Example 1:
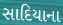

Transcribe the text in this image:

સાદિયાના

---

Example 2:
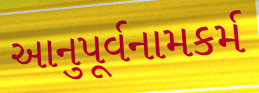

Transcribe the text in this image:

આનુપૂર્વનામકર્મ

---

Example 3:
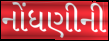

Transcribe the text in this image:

નોંધણીની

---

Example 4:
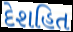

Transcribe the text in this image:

દેશહિત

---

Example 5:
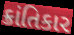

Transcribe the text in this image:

ક્રાંતિકાર